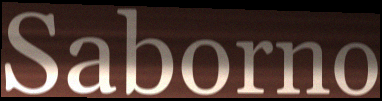
Saborno